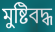
মুষ্টিবদ্ধ